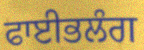
ਫਾਈਭਲੰਗ